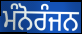
ਮੰਨੋਰੰਜਨ